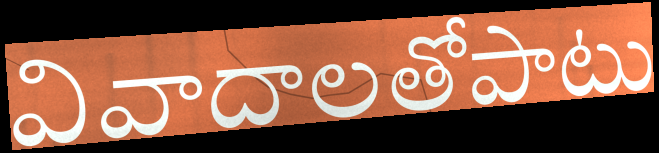
వివాదాలతోపాటు